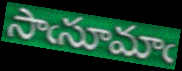
సాఁసూమాఁ